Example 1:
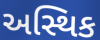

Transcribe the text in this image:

અસ્થિક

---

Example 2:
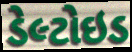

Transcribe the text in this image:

ડેલ્ટોઇડ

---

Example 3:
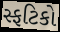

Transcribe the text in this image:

સ્ફટિકો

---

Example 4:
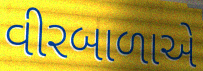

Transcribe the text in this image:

વીરબાળાએ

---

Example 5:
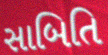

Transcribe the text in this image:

સાબિતિ